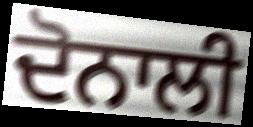
ਦੋਨਾਲੀ